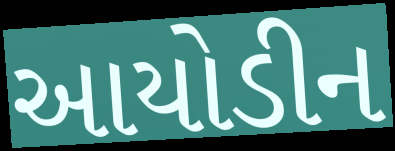
આયોડીન